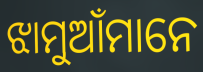
ଝାମୁଆଁମାନେ